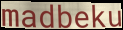
madbeku